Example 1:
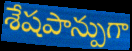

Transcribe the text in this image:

శేషపాన్పుగా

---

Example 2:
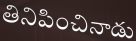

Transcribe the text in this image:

తినిపించినాడు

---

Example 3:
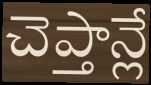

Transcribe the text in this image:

చెప్తాన్లే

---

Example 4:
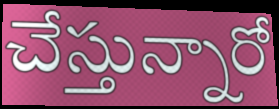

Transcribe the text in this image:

చేస్తున్నారో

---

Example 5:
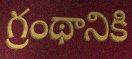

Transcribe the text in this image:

గ్రంథానికి